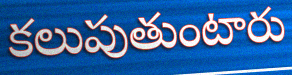
కలుపుతుంటారు